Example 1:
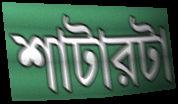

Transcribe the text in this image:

শাটারটা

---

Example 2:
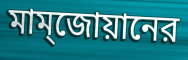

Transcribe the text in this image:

মাম্জোয়ানের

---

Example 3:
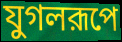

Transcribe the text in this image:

যুগলরূপে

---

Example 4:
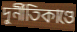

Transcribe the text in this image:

দুর্নীতিকাণ্ডে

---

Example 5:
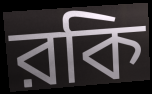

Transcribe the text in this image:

রকি